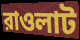
রাওলাট